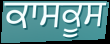
ਕਾਸਕੂਸ